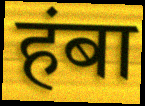
हंबा